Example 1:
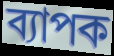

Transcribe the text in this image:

ব্যাপক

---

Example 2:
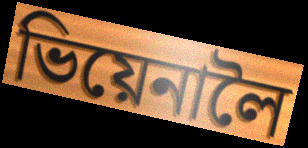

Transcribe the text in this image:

ভিয়েনালৈ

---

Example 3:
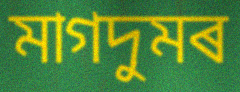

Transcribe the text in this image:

মাগদুমৰ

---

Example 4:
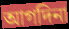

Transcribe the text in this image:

আগদিনা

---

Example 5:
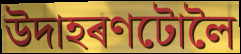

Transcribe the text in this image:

উদাহৰণটোলৈ